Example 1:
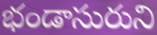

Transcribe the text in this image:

భండాసురుని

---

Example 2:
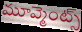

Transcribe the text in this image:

మూవ్మెంట్స్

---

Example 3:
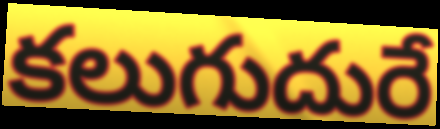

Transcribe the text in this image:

కలుగుదురే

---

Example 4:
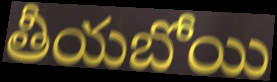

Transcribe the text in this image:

తీయబోయి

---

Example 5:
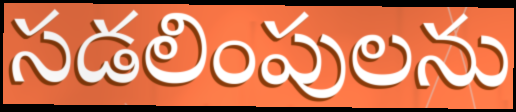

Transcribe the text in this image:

సడలింపులను